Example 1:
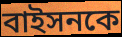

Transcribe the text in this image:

বাইসনকে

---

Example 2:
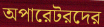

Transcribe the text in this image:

অপারেটরদের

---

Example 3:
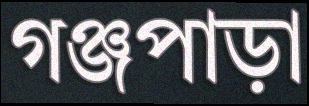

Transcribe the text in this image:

গঞ্জপাড়া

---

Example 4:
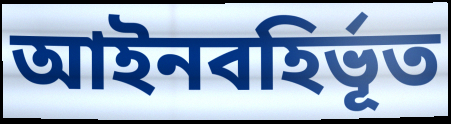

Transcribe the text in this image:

আইনবহির্ভূত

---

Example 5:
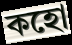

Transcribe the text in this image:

কহো